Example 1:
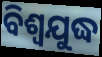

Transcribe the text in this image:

ବିଶ୍ୱଯୁଦ୍ଧ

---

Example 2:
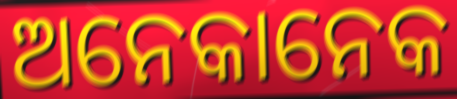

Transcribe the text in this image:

ଅନେକାନେକ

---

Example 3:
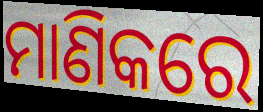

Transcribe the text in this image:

ମାଣିକରେ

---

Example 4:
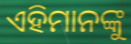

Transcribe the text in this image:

ଏହିମାନଙ୍କୁ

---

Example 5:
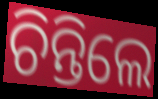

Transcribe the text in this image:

ଚିନ୍ତିଲେ